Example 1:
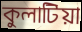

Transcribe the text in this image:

কুলাটিয়া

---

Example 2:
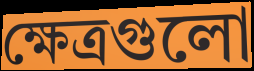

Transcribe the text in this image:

ক্ষেত্রগুলো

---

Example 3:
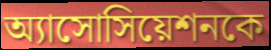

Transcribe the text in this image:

অ্যাসোসিয়েশনকে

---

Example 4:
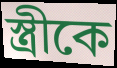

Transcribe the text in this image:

স্ত্রীকে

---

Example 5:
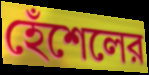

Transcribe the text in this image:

হেঁশেলের